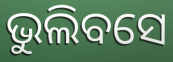
ଭୁଲିବସେ